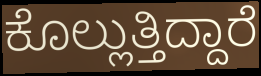
ಕೊಲ್ಲುತ್ತಿದ್ದಾರೆ